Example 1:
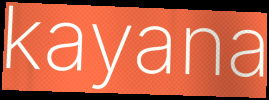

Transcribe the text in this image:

kayana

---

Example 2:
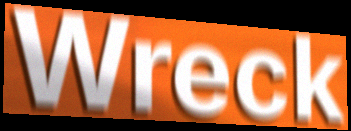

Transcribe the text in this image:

Wreck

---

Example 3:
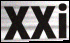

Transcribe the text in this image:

XXi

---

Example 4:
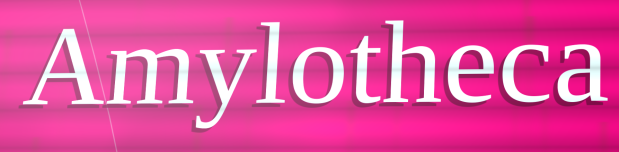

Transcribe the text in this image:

Amylotheca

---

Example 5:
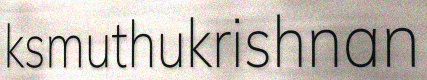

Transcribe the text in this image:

ksmuthukrishnan